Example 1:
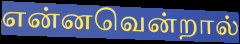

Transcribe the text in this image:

என்னவென்றால்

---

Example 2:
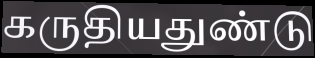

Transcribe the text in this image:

கருதியதுண்டு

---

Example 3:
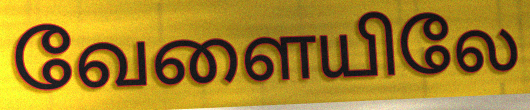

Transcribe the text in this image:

வேளையிலே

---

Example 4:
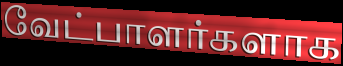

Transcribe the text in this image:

வேட்பாளர்களாக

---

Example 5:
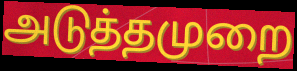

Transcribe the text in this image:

அடுத்தமுறை